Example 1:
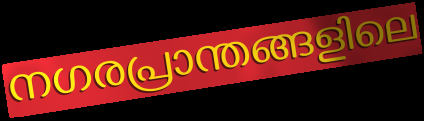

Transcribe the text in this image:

നഗരപ്രാന്തങ്ങളിലെ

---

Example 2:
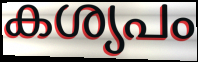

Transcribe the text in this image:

കശ്യപം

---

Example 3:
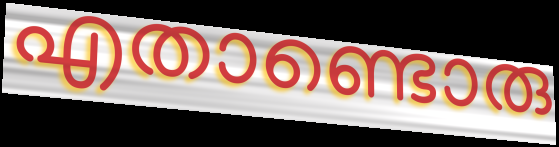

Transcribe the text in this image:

എതാണ്ടൊരു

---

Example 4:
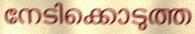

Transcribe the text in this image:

നേടിക്കൊടുത്ത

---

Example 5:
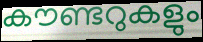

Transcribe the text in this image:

കൗണ്ടറുകളും